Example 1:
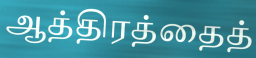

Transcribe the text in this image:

ஆத்திரத்தைத்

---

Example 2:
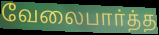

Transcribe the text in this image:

வேலைபார்த்த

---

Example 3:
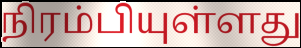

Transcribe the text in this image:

நிரம்பியுள்ளது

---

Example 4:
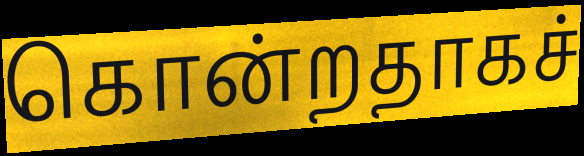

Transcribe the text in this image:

கொன்றதாகச்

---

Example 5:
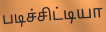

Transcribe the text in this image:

படிச்சிட்டியா